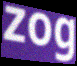
zog